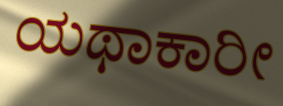
ಯಥಾಕಾರೀ